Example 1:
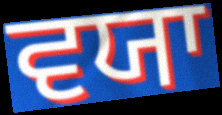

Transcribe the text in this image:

ਵਯਾ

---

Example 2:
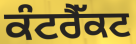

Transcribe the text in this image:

ਕੰਟਰੈੱਕਟ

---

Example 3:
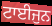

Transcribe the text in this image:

ਟਾਈਜੁਨ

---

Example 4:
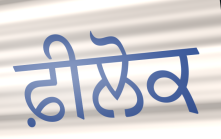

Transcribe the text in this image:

ਫ਼ੀਲੋਕ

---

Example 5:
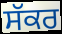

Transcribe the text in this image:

ਸੱਕਰ